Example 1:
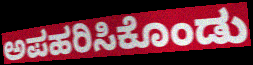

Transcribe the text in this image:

ಅಪಹರಿಸಿಕೊಂಡು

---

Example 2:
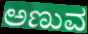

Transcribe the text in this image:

ಅಣುವ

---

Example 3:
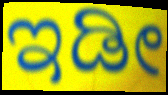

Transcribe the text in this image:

ಇಡೀ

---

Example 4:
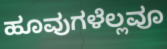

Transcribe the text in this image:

ಹೂವುಗಳೆಲ್ಲವೂ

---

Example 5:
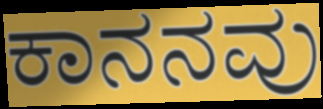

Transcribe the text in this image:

ಕಾನನವು